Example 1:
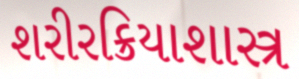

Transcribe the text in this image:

શરીરક્રિયાશાસ્ત્ર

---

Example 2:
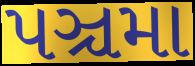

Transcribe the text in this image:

પઞ્ચમા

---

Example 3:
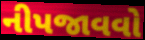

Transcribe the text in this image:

નીપજાવવો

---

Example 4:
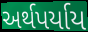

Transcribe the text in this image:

અર્થપર્યાય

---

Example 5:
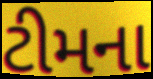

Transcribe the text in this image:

ટીમના